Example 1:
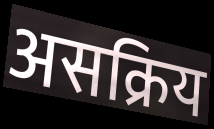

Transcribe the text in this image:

असक्रिय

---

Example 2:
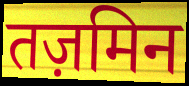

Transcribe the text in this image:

तज़मिन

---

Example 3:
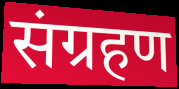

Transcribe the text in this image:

संग्रहण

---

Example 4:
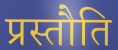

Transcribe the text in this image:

प्रस्तौति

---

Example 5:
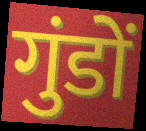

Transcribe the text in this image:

गुंडों